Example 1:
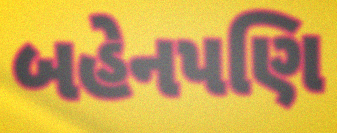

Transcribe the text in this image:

બહેનપણિ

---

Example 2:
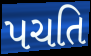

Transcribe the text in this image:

પચતિ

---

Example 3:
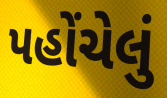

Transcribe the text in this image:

પહોંચેલું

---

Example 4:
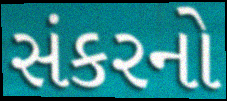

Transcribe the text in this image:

સંકરનો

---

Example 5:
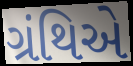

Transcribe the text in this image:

ગ્રંથિએ